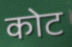
कोट